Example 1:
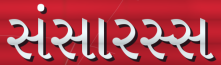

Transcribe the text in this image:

સંસારસ્સ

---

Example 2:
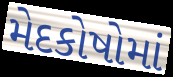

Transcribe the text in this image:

મેદકોષોમાં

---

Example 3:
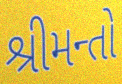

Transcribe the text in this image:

શ્રીમન્તો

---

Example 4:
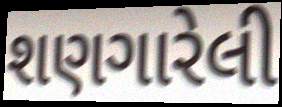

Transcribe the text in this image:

શણગારેલી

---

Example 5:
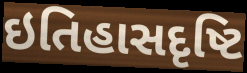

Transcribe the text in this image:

ઇતિહાસદૃષ્ટિ